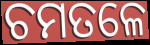
ଚମତଳେ